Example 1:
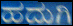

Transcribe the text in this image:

ಹದುಗಿ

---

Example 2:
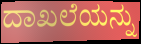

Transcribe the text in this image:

ದಾಖಲೆಯನ್ನು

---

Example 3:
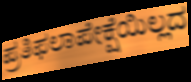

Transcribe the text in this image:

ಪ್ರತಿಫಲಾಪೇಕ್ಷೆಯಿಲ್ಲದ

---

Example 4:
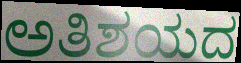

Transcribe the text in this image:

ಅತಿಶಯದ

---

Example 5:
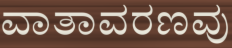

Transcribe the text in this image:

ವಾತಾವರಣವು